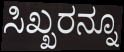
ಸಿಖ್ಖರನ್ನೂ